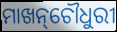
ମାଖନ୍‌ଚୌଧୁରୀ